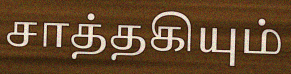
சாத்தகியும்